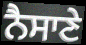
ਨੈਸਾਣੇ